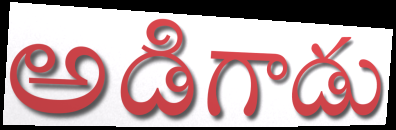
అడిగాడు